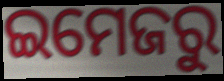
ଇମେଜରୁ